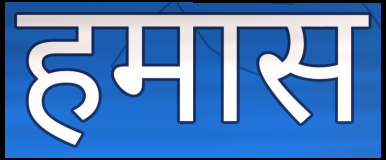
हमास